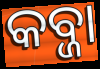
କବ୍ଜା